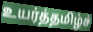
உயர்த்தமிழ்ச்